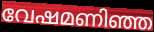
വേഷമണിഞ്ഞ